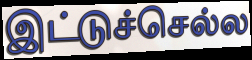
இட்டுச்செல்ல